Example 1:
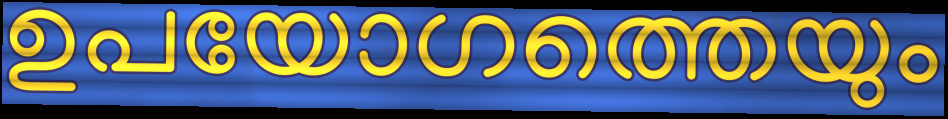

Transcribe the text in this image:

ഉപയോഗത്തെയും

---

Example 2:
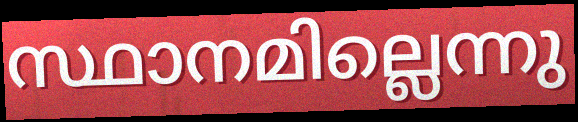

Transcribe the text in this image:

സ്ഥാനമില്ലെന്നു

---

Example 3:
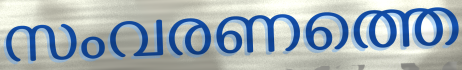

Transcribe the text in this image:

സംവരണത്തെ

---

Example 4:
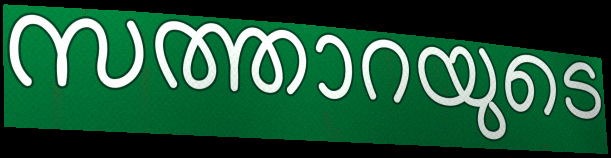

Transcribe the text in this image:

സത്താറയുടെ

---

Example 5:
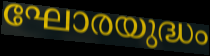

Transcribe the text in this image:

ഘോരയുദ്ധം